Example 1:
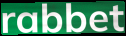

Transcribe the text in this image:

rabbet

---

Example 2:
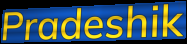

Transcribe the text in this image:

Pradeshik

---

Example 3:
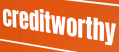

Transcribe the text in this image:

creditworthy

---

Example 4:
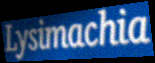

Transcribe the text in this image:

Lysimachia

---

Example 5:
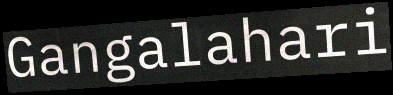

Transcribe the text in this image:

Gangalahari